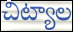
చిట్యాల